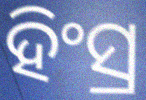
ହିଂସ୍ର